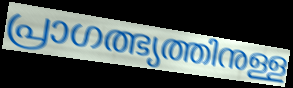
പ്രാഗത്ഭ്യത്തിനുള്ള